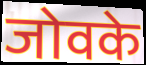
जोवके